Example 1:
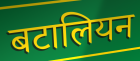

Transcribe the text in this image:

बटालियन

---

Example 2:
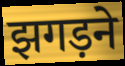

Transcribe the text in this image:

झगड़ने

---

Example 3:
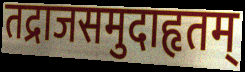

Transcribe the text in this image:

तद्राजसमुदाहृतम्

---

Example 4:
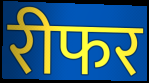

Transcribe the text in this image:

रीफर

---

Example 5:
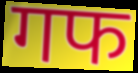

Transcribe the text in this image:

गफ